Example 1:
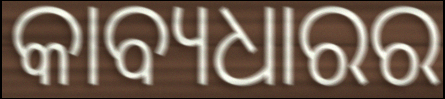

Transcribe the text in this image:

କାବ୍ୟଧାରର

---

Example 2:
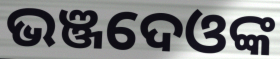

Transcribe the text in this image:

ଭଞ୍ଜଦେଓଙ୍କ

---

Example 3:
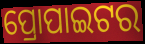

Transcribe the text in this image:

ପ୍ରୋପାଇଟର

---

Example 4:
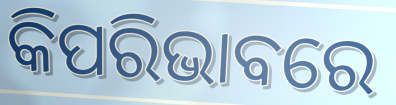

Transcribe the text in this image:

କିପରିଭାବରେ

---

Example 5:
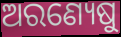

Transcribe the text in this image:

ଅରଣ୍ୟେଷୁ